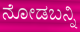
ನೋಡಬನ್ನಿ